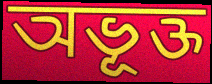
অভূক্ত